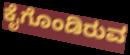
ಕೈಗೊಂಡಿರುವ